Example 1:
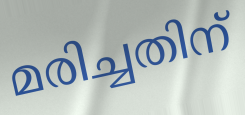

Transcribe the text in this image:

മരിച്ചതിന്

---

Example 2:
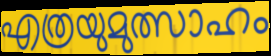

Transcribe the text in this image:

എത്രയുമുത്സാഹം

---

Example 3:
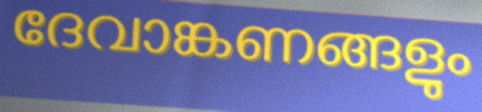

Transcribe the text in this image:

ദേവാങ്കണങ്ങളും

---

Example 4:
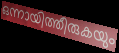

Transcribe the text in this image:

ഒന്നായിത്തീരുകയും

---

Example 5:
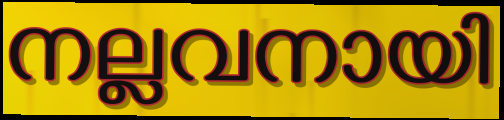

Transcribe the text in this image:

നല്ലവനായി